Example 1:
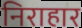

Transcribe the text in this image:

निराहार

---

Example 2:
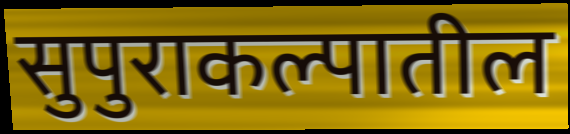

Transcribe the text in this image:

सुपुराकल्पातील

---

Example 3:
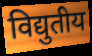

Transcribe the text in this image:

विद्युतीय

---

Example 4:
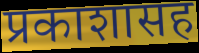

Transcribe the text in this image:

प्रकाशासह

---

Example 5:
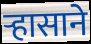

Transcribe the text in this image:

ऱ्हासाने